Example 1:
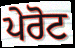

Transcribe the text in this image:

ਪੇਰੋਟ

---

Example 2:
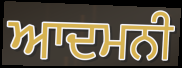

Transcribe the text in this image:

ਆਦਮਨੀ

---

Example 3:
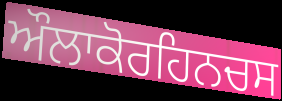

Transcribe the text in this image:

ਔਲਾਕੋਰਹਿਨਚਸ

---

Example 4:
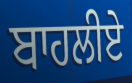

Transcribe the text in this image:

ਬਾਹਲੀਏ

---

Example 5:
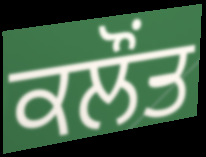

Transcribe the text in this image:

ਕਲੌਂਤ